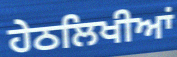
ਹੇਠਲਿਖੀਆਂ